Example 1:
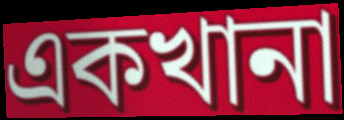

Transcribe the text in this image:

একখানা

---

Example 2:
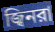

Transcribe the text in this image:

জ্বিনরা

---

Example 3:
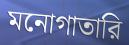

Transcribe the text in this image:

মনোগাতারি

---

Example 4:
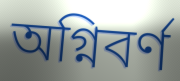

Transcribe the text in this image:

অগ্নিবর্ণ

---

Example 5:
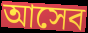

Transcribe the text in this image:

আসেব